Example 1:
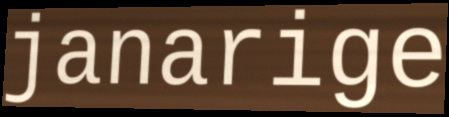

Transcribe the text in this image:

janarige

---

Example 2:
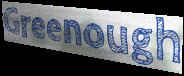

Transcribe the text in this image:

Greenough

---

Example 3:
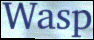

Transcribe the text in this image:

Wasp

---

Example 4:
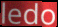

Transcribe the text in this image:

ledo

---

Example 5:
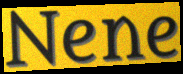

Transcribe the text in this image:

Nene